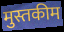
मुस्तकीम